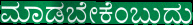
ಮಾಡಬೇಕೆಂಬುದು